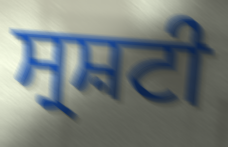
ਸ੍ਰਸ਼ਟੀ